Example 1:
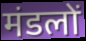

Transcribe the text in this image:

मंडलों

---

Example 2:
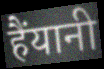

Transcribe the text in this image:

हैंयानी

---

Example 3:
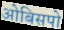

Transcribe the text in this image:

ओबिसपो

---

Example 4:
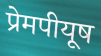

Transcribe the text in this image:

प्रेमपीयूष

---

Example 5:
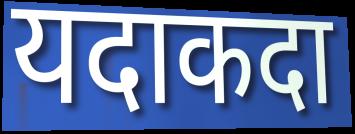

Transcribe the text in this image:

यदाकदा